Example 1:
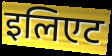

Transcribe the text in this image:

इलिएट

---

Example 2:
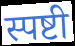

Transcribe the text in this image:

स्पष्टी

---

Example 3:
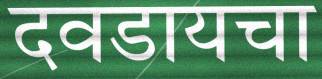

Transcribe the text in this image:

दवडायचा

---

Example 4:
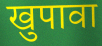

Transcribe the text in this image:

खुपावा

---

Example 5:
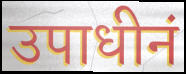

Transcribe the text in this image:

उपाधीनं